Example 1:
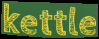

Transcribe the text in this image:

kettle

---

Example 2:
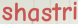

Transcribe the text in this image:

shastri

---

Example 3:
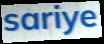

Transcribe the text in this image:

sariye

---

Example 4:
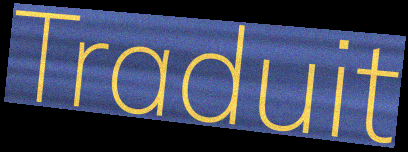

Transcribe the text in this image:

Traduit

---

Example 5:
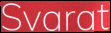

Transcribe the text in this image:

Svarat